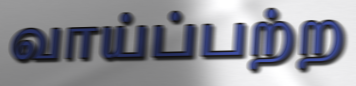
வாய்ப்பற்ற